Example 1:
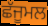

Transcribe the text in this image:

ਛੱਜੂਮਲ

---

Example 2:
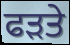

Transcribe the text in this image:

ਫੜਤੇ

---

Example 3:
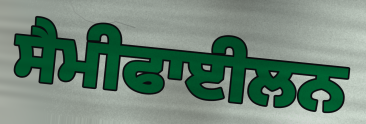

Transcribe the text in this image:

ਸੈਮੀਫਾਈਲਨ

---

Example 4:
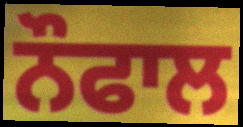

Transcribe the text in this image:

ਨੌਫਾਲ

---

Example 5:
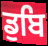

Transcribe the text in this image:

ਡੁਬਿ